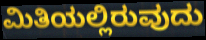
ಮಿತಿಯಲ್ಲಿರುವುದು